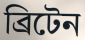
ব্রিটেন